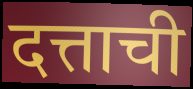
दत्ताची